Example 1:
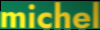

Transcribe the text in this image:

michel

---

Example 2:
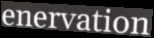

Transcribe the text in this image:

enervation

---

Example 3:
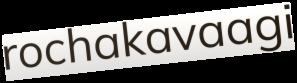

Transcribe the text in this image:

rochakavaagi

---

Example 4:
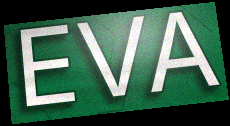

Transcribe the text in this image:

EVA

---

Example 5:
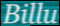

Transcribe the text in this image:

Billu